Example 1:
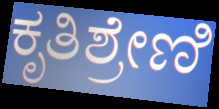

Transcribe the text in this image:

ಕೃತಿಶ್ರೇಣಿ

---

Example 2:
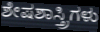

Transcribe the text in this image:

ಶೇಷಶಾಸ್ತ್ರಿಗಳು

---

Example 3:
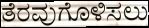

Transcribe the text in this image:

ತೆರವುಗೊಳಿಸಲು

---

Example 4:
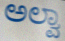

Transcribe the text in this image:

ಅಲ್ವಾ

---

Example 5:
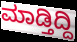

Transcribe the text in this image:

ಮಾಡ್ತಿದ್ದಿ